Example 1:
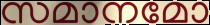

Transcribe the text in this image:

സമാനമോ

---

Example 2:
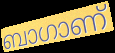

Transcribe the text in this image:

ബാഗാണ്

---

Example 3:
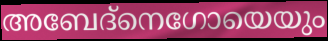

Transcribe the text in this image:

അബേദ്നെഗോയെയും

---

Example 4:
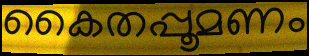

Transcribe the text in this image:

കൈതപ്പൂമണം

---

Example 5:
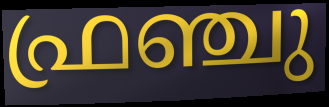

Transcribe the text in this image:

ഫ്രഞ്ചു